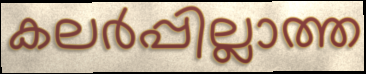
കലർപ്പില്ലാത്ത